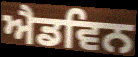
ਐਡਵਿਨ